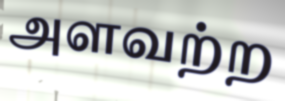
அளவற்ற